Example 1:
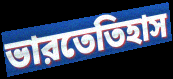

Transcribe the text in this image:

ভারতেতিহাস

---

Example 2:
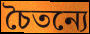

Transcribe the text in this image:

চৈতন্যে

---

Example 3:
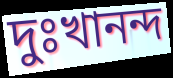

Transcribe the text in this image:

দুঃখানন্দ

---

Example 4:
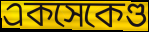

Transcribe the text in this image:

একসেকেণ্ড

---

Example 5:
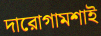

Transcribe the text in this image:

দারোগামশাই